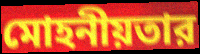
মোহনীয়তার